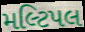
મલ્ટિપલ